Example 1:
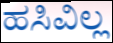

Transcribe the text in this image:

ಹಸಿವಿಲ್ಲ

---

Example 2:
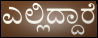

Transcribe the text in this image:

ಎಲ್ಲಿದ್ದಾರೆ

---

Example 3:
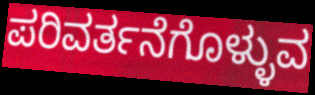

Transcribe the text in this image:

ಪರಿವರ್ತನೆಗೊಳ್ಳುವ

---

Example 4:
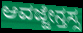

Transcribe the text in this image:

ಆವಜ್ಜೇನ್ತಸ್ಸ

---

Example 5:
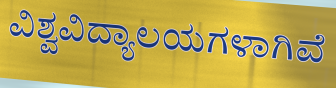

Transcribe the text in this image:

ವಿಶ್ವವಿದ್ಯಾಲಯಗಳಾಗಿವೆ